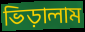
ভিড়ালাম